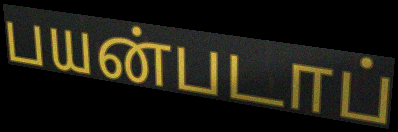
பயன்படாப்